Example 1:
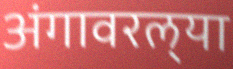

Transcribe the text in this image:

अंगावरल्या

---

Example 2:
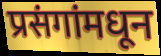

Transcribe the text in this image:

प्रसंगांमधून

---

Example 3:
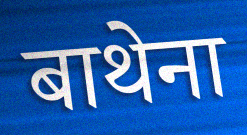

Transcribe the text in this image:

बाथेना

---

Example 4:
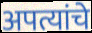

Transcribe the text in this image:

अपत्यांचे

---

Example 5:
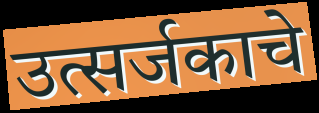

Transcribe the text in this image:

उत्सर्जकाचे